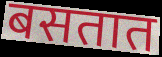
बसतात